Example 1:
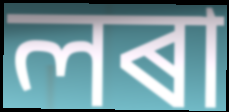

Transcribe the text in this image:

লৰা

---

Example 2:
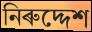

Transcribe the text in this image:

নিৰুদ্দেশ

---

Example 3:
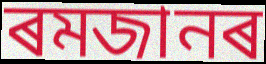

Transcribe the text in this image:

ৰমজানৰ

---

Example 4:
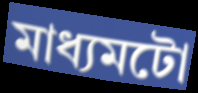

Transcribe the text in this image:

মাধ্যমটো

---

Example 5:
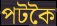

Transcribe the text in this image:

পটকৈ